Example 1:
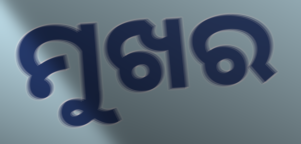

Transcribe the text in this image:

ମୁଖର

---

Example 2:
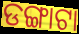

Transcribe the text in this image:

ଡଙ୍ଗାଟା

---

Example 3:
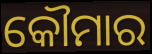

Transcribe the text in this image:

କୌମାର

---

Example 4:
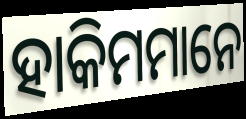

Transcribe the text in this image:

ହାକିମମାନେ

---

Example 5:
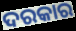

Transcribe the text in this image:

ଦରକାର